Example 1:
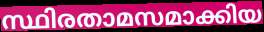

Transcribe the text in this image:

സ്ഥിരതാമസമാക്കിയ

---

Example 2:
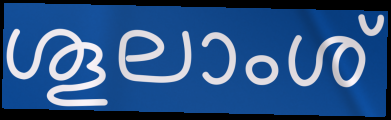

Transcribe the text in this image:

ശൂലാംശ്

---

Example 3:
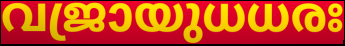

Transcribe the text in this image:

വജ്രായുധധരഃ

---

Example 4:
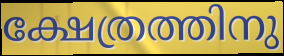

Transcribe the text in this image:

ക്ഷേത്രത്തിനു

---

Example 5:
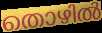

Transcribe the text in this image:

തൊഴിൽ